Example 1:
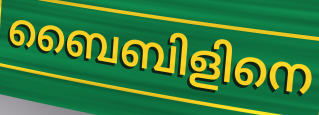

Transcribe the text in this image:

ബൈബിളിനെ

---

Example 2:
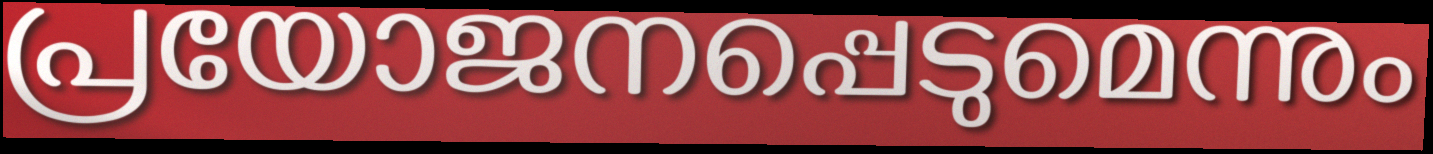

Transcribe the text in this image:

പ്രയോജനപ്പെടുമെന്നും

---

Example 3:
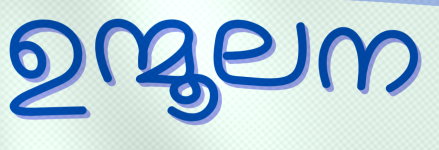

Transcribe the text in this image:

ഉന്മൂലന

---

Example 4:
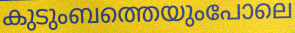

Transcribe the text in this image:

കുടുംബത്തെയുംപോലെ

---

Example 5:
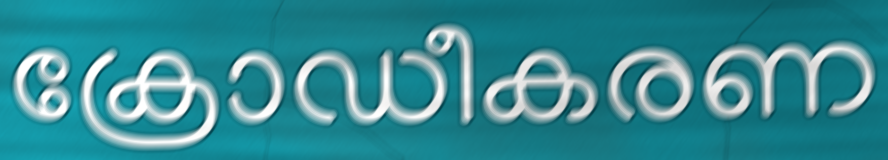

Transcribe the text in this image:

ക്രോഡീകരണ